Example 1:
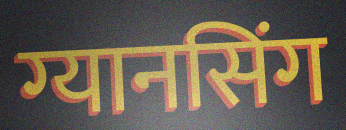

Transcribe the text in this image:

ग्यानसिंग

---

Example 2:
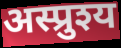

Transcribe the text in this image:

अस्प्रुश्य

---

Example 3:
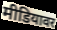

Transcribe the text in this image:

मीडियावर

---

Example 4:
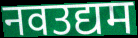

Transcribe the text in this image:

नवउद्यम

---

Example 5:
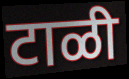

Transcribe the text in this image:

टाळी